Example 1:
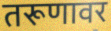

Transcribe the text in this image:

तरूणावर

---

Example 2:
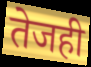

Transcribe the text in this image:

तेजही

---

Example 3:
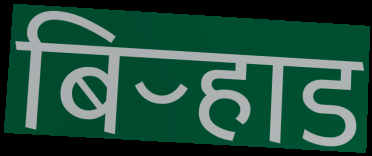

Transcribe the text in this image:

बिऱ्हाड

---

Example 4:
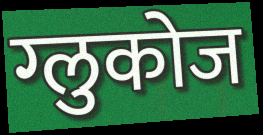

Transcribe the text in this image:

ग्लुकोज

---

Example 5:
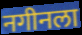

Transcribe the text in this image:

नगीनला